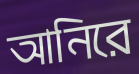
আনিরে